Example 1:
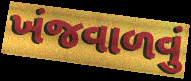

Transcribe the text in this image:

ખંજવાળવું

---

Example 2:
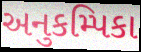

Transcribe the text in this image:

અનુકમ્પિકા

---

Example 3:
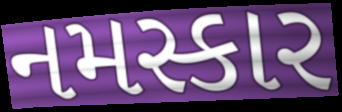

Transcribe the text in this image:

નમસ્કાર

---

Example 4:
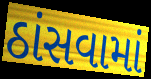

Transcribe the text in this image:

ઠાંસવામાં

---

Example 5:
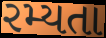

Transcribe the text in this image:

રમ્યતા